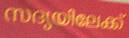
സദ്യയിലേക്ക്